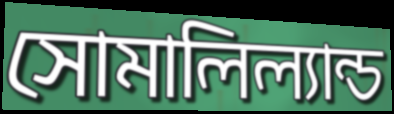
সোমালিল্যান্ড